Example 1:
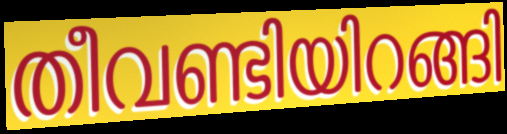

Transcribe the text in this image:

തീവണ്ടിയിറങ്ങി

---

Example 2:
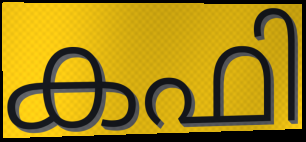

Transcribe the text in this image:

കഫി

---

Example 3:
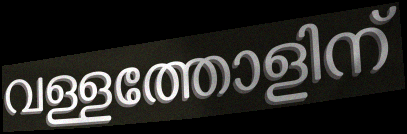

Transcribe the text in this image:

വള്ളത്തോളിന്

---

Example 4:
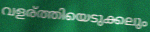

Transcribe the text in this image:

വളര്ത്തിയെടുക്കലും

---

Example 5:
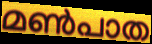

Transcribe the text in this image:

മൺപാത